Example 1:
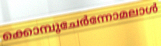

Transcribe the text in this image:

ക്കൊമ്പുചേർന്നോമലാൾ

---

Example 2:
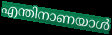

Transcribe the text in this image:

എന്തിനാണയാൾ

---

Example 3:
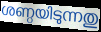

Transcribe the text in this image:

ശണ്ഠയിടുന്നതു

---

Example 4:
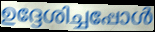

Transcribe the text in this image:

ഉദ്ദേശിച്ചപ്പോൾ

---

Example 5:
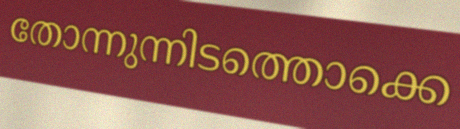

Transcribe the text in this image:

തോന്നുന്നിടത്തൊക്കെ